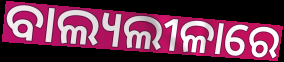
ବାଲ୍ୟଲୀଳାରେ